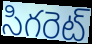
సిగరెట్